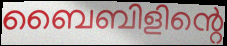
ബൈബിളിന്റെ